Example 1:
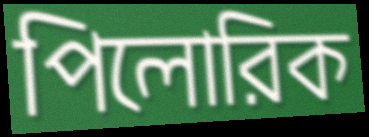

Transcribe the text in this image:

পিলোরিক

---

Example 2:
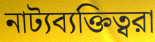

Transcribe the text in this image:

নাট্যব্যক্তিত্বরা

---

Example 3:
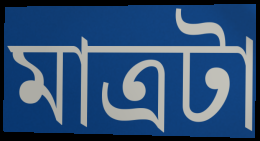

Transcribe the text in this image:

মাত্রটা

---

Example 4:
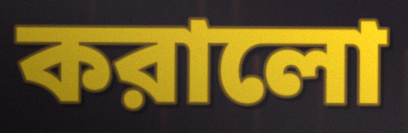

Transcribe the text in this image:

করালো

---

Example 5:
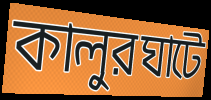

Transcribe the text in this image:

কালুরঘাটে